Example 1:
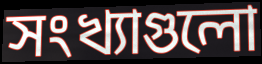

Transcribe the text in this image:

সংখ্যাগুলো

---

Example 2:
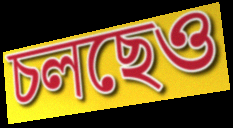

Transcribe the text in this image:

চলছেও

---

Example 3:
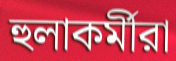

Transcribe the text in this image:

হুলাকর্মীরা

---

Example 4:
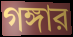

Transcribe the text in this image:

গঙ্গার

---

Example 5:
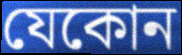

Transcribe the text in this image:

যেকোন